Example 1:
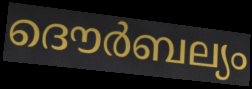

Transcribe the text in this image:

ദൌർബല്യം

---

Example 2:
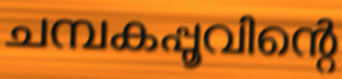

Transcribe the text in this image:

ചമ്പകപ്പൂവിന്റെ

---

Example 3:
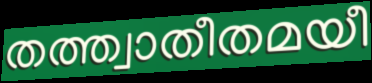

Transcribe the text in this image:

തത്ത്വാതീതമയീ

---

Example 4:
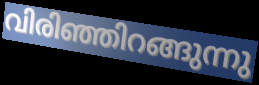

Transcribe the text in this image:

വിരിഞ്ഞിറങ്ങുന്നു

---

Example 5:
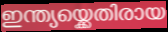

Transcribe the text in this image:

ഇന്ത്യയ്ക്കെതിരായ